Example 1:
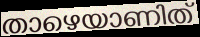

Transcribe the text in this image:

താഴെയാണിത്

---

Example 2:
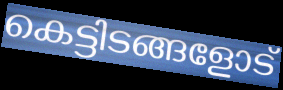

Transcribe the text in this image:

കെട്ടിടങ്ങളോട്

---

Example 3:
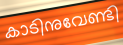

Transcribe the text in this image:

കാടിനുവേണ്ടി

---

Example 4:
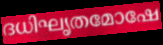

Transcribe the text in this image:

ദധിഘൃതമോഷേ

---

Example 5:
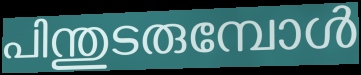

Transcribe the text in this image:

പിന്തുടരുമ്പോൾ